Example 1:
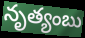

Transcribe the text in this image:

నృత్యంబు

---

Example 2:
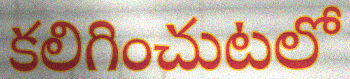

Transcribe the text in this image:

కలిగించుటలో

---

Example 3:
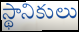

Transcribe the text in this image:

స్థానికులు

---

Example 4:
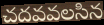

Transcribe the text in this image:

చదవవలసిన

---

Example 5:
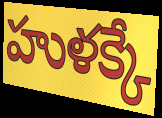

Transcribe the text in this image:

హుళక్కే